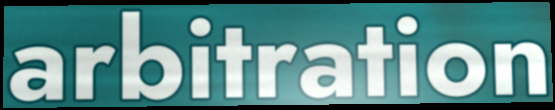
arbitration